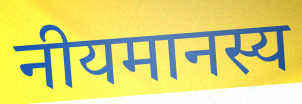
नीयमानस्य